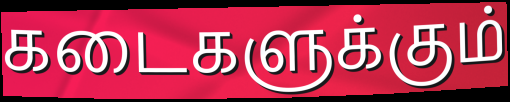
கடைகளுக்கும்